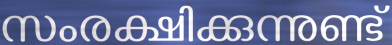
സംരക്ഷിക്കുന്നുണ്ട്